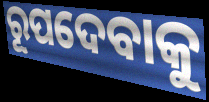
ରୂପଦେବାକୁ